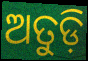
ଅତୁଡ଼ି